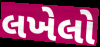
લખેલો